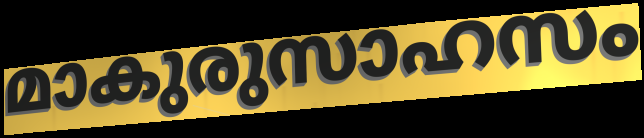
മാകുരുസാഹസം